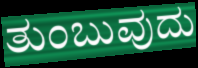
ತುಂಬುವುದು